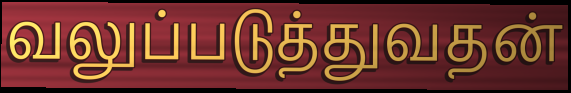
வலுப்படுத்துவதன்